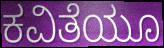
ಕವಿತೆಯೂ